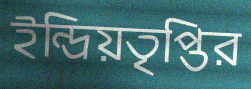
ইন্দ্রিয়তৃপ্তির